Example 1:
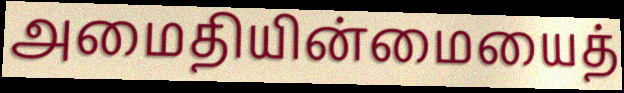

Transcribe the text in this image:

அமைதியின்மையைத்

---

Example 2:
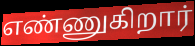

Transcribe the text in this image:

எண்ணுகிறார்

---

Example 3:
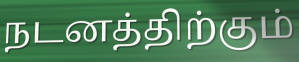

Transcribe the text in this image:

நடனத்திற்கும்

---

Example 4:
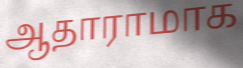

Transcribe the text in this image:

ஆதாராமாக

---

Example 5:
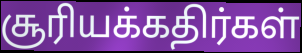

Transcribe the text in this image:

சூரியக்கதிர்கள்